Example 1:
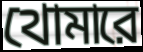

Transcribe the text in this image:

থোমারে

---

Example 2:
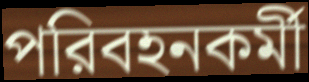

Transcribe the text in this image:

পরিবহনকর্মী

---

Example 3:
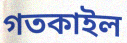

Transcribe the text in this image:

গতকাইল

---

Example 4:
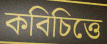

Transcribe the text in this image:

কবিচিত্তে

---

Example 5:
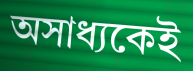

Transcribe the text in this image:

অসাধ্যকেই